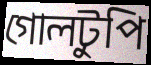
গোলটুপি